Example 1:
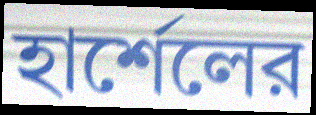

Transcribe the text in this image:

হার্শেলের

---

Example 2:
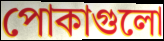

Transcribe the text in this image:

পোকাগুলো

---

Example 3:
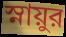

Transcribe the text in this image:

স্নায়ুর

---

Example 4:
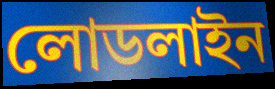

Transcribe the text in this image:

লোডলাইন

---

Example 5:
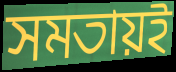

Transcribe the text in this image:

সমতায়ই